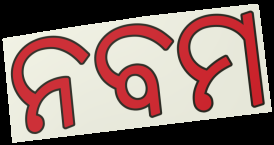
ନବମ